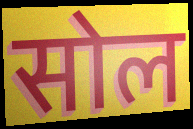
सोल